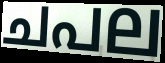
ചപല